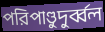
পরিপাণ্ডুদুর্ব্বল